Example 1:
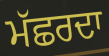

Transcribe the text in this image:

ਮੱਛਰਦਾ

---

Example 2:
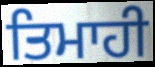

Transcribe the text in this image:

ਤਿਮਾਹੀ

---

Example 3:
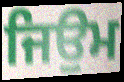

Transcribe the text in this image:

ਜਿਉਮ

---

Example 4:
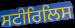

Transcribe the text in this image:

ਸਟੀਰਿਲਿਸ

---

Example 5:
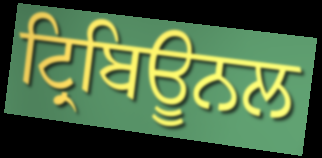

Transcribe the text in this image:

ਟ੍ਰਿਬਿਊਨਲ